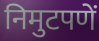
निमुटपणें